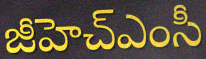
జీహెచ్ఎంసీ